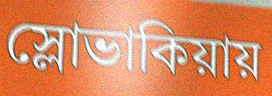
স্লোভাকিয়ায়